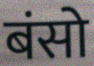
बंसो